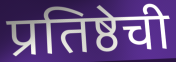
प्रतिष्ठेची